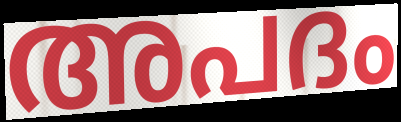
അപദം